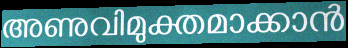
അണുവിമുക്തമാക്കാൻ